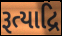
રૂત્યાદ્રિ